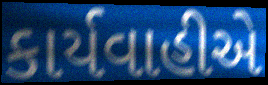
કાર્યવાહીએ